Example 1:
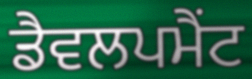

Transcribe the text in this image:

ਡੈਵਲਪਮੈਂਟ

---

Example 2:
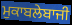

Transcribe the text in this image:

ਮੁਕਾਬਲੇਬਾਜੀ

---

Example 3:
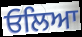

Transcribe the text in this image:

ਓਲਿਆ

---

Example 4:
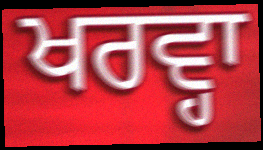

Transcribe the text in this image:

ਖਰਵ੍ਹਾ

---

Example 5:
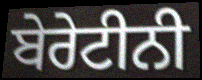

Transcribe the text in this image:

ਬੇਰੇਟੀਨੀ